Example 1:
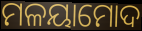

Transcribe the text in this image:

ମଳୟାମୋଦ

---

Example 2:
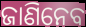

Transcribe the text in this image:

ଜାଣିନେବ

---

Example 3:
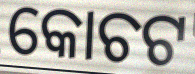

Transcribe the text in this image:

କୋଚଟ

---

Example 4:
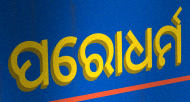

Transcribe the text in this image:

ପରୋଧର୍ମ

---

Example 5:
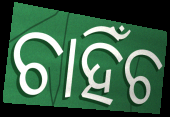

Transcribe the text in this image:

ଚାହିଁଚ